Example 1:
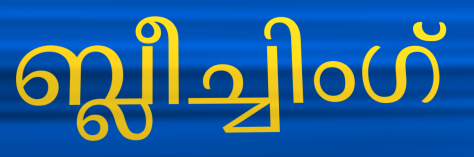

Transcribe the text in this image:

ബ്ലീച്ചിംഗ്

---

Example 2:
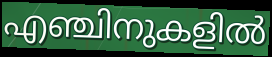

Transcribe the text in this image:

എഞ്ചിനുകളിൽ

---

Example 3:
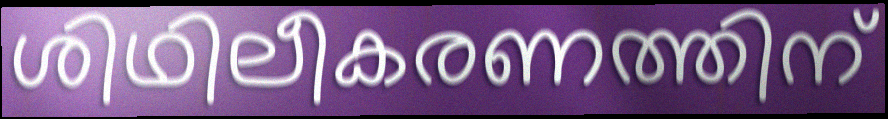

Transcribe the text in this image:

ശിഥിലീകരണത്തിന്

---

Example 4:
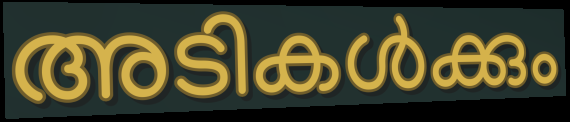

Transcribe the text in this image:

അടികൾക്കും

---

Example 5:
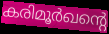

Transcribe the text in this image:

കരിമൂർഖന്റെ